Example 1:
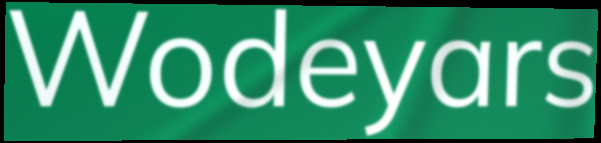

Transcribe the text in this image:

Wodeyars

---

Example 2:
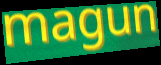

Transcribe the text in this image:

magun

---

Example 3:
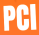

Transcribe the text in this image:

PCl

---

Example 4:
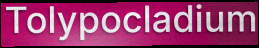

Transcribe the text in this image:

Tolypocladium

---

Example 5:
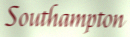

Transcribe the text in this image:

Southampton